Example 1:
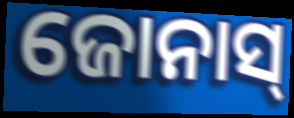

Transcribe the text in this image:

ଜୋନାସ୍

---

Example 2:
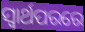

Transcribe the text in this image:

ସ୍ୱାର୍ଥପରରେ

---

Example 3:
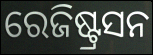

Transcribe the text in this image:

ରେଜିଷ୍ଟ୍ରସନ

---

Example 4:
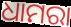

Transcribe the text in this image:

ଧାମରା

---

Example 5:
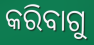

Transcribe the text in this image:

କରିବାଗୁ